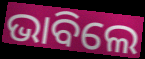
ଭାବିଲେ